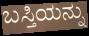
ಬಸ್ತಿಯನ್ನು